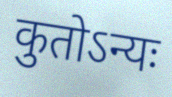
कुतोऽन्यः